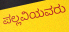
ಪಲ್ಲವಿಯವರು